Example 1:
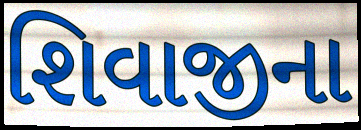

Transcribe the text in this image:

શિવાજીના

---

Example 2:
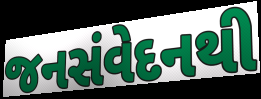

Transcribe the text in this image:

જનસંવેદનથી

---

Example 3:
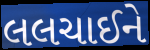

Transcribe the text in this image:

લલચાઈને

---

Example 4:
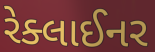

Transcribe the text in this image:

રેક્લાઈનર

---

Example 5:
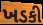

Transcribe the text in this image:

ખડકી